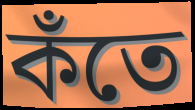
কঁতে